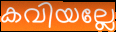
കവിയല്ലേ